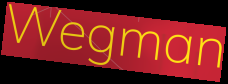
Wegman